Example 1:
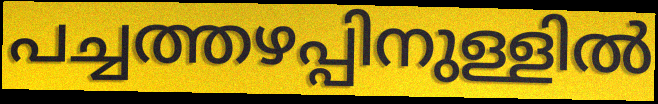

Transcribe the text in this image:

പച്ചത്തഴപ്പിനുള്ളിൽ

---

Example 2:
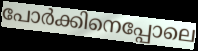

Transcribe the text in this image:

പോർക്കിനെപ്പോലെ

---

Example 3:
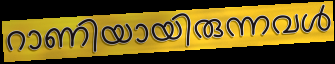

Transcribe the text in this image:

റാണിയായിരുന്നവൾ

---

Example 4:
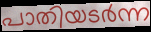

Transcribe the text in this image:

പാതിയടർന്ന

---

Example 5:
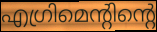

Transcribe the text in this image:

എഗ്രിമെന്റിന്റെ